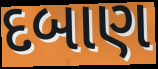
દબાણ